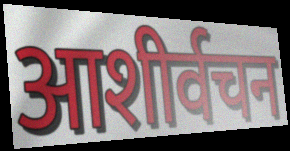
आशीर्वचन